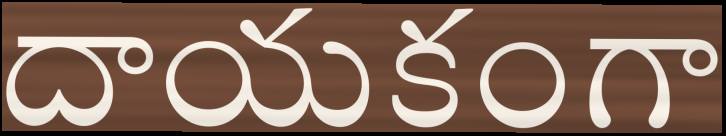
దాయకంగా